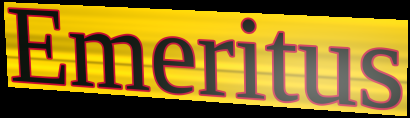
Emeritus